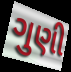
ગુણી